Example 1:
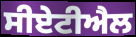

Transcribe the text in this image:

ਸੀਏਟੀਐਲ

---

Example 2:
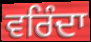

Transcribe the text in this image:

ਵਰਿੰਦਾ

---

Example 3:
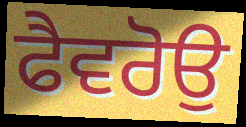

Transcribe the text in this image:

ਫੈਵਰੋਉ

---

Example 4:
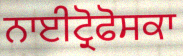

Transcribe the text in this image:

ਨਾਈਟ੍ਰੋਫੋਸਕਾ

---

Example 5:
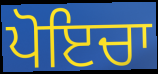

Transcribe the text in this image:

ਪੋਇਚਾ